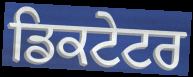
ਡਿਕਟੇਟਰ